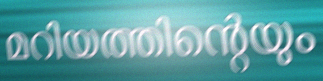
മറിയത്തിന്റെയും